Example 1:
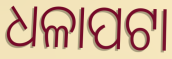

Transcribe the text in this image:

ଧଳାପଟା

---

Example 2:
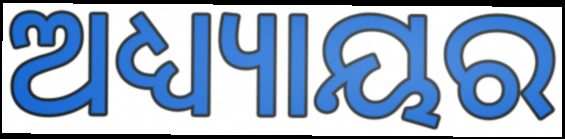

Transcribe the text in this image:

ଅଧ୍ୟ୍ୟାୟର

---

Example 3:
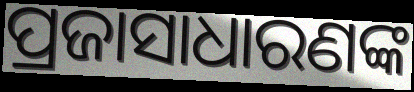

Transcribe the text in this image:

ପ୍ରଜାସାଧାରଣଙ୍କ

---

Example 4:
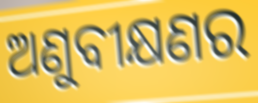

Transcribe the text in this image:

ଅଣୁବୀକ୍ଷଣର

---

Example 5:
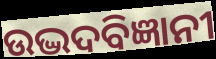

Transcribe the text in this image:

ଉଦ୍ଭଦବିଜ୍ଞାନୀ